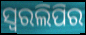
ସ୍ୱରଲିପିର